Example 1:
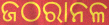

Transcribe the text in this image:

ଜଠରାନଳ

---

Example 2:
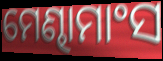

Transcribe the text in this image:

ମେଣ୍ଢାମାଂସ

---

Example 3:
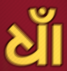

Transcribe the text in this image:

ଧାଁ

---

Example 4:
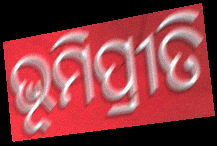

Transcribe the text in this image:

ଭୂମିପ୍ରୀତି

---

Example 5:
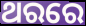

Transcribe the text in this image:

ଥରରେ